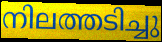
നിലത്തടിച്ചു